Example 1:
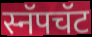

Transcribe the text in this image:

स्नॅपचॅट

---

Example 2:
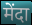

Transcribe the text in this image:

मेंदा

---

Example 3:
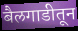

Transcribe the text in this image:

बैलगाडीतून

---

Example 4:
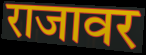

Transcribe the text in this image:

राजावर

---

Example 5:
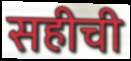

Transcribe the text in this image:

सहीची